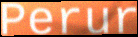
Perur